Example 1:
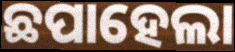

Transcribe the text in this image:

ଛପାହେଲା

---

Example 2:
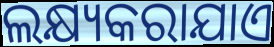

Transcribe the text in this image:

ଲକ୍ଷ୍ୟକରାଯାଏ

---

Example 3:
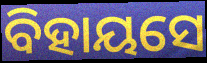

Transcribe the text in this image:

ବିହାୟସେ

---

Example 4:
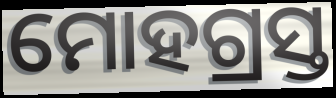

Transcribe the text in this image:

ମୋହଗ୍ରସ୍ତ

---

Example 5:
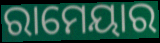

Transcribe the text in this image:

ରାମେୟାର